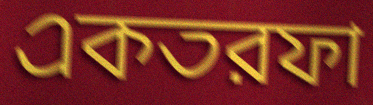
একতরফা